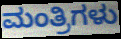
ಮಂತ್ರಿಗಳು